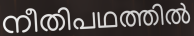
നീതിപഥത്തിൽ